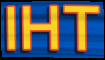
IHT